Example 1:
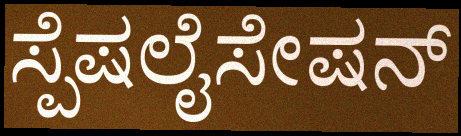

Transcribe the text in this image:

ಸ್ಪೆಷಲೈಸೇಷನ್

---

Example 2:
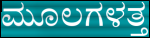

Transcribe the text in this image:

ಮೂಲಗಳತ್ತ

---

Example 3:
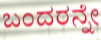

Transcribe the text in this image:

ಬಂದರನ್ನೇ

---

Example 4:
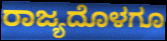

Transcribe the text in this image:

ರಾಜ್ಯದೊಳಗೂ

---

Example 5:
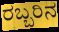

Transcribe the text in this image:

ರಬ್ಬರಿನ